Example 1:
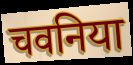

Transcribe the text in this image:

चवनिया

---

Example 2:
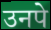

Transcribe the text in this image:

उनपे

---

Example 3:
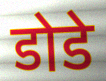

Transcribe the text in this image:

डोडे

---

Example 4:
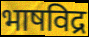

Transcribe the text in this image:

भाषविद्र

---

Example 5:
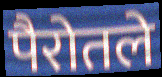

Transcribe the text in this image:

पैरोतले